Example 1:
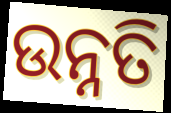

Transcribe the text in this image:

ଉନ୍ନତି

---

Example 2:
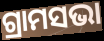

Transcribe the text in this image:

ଗ୍ରାମସଭା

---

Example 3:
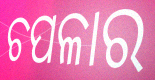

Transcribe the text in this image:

ଚପଳାର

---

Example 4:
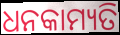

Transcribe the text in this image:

ଧନକାମ୍ୟତି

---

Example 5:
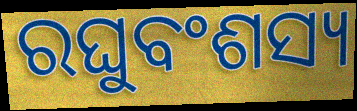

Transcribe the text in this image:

ରଘୁବଂଶସ୍ୟ